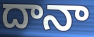
దానా